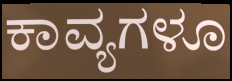
ಕಾವ್ಯಗಳೂ